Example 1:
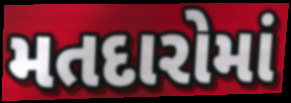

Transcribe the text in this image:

મતદારોમાં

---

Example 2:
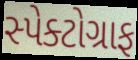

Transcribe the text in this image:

સ્પેક્ટોગ્રાફ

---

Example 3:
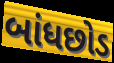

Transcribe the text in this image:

બાંધછોડ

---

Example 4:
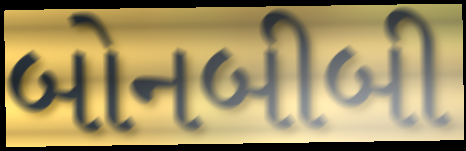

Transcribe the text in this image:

બોનબીબી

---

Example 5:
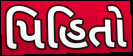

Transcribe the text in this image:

પિહિતો